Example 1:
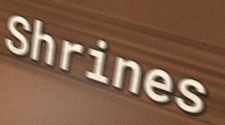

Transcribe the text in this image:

Shrines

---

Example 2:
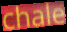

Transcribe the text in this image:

chale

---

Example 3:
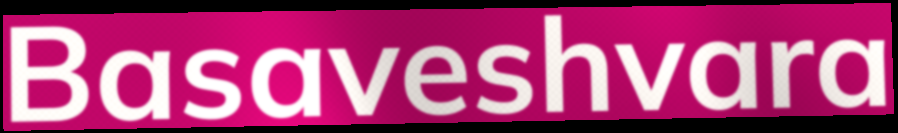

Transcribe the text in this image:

Basaveshvara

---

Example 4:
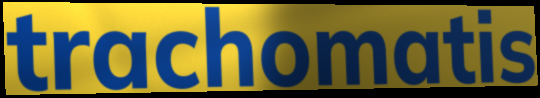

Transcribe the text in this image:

trachomatis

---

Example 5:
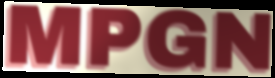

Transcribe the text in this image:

MPGN